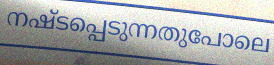
നഷ്ടപ്പെടുന്നതുപോലെ